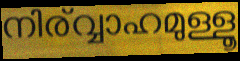
നിര്വ്വാഹമുള്ളൂ